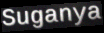
Suganya